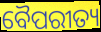
ବୈପରୀତ୍ୟ